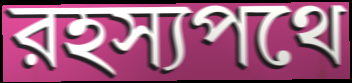
রহস্যপথে